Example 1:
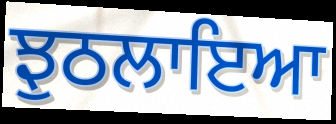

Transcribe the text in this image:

ਝੁਠਲਾਇਆ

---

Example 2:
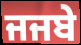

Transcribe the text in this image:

ਜਜਬੇ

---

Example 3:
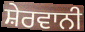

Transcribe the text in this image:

ਸ਼ੇਰਵਾਨੀ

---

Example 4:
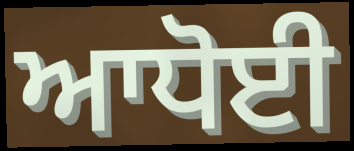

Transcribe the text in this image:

ਆਧੋਈ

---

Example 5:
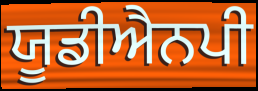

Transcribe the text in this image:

ਯੂਡੀਐਨਪੀ